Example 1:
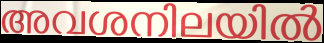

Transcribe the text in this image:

അവശനിലയിൽ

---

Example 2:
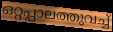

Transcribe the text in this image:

ഒറ്റപ്പാലത്തുവച്ച്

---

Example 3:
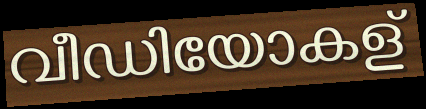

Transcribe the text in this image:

വീഡിയോകള്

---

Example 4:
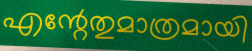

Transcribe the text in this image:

എന്റേതുമാത്രമായി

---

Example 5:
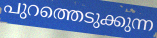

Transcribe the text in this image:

പുറത്തെടുക്കുന്ന